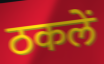
ठकलें